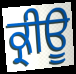
ਕ੍ਰੀਊ